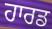
ਹਾਰਡ